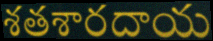
శతశారదాయ